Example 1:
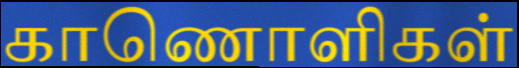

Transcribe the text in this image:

காணொளிகள்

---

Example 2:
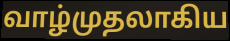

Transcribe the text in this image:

வாழ்முதலாகிய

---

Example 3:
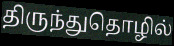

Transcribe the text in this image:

திருந்துதொழில்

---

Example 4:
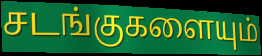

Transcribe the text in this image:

சடங்குகளையும்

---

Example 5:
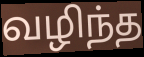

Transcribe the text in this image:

வழிந்த